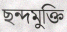
ছন্দমুক্তি